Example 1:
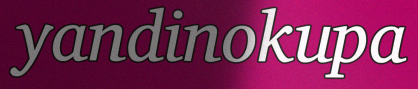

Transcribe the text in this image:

yandinokupa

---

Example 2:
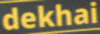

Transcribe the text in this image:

dekhai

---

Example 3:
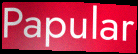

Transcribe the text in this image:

Papular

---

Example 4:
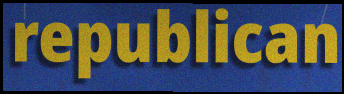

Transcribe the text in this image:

republican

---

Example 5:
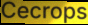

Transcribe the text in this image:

Cecrops